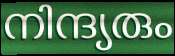
നിന്ദ്യരും